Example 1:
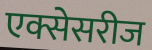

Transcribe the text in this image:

एक्सेसरीज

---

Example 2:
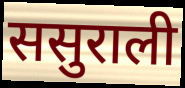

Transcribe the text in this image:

ससुराली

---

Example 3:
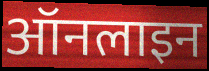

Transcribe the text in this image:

ऑनलाइन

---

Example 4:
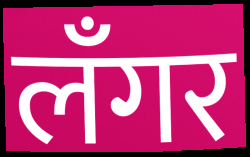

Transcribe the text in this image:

लँगर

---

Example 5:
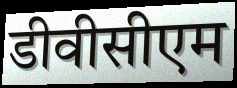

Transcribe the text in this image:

डीवीसीएम